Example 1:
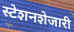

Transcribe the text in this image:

स्टेशनशेजारी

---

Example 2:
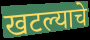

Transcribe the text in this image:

खटल्याचे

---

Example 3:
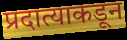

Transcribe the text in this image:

प्रदात्याकडून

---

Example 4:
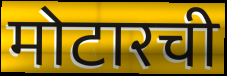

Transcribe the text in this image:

मोटारची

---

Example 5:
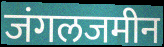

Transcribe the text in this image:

जंगलजमीन